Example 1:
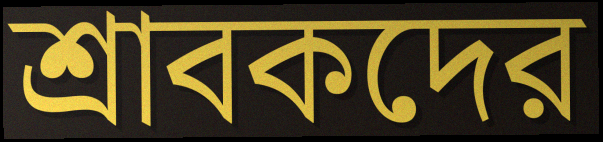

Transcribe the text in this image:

শ্রাবকদের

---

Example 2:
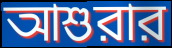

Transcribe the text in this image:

আশুরার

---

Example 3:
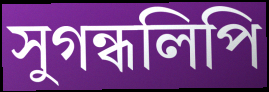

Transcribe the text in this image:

সুগন্ধলিপি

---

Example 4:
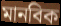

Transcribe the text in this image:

মানবিক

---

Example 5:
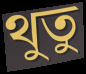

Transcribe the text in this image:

থুতু